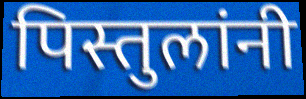
पिस्तुलांनी